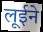
लूईने